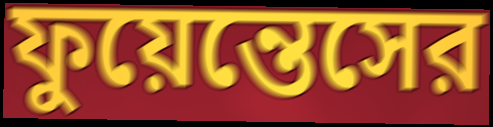
ফুয়েন্তেসের